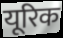
यूरिक